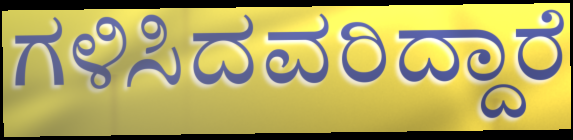
ಗಳಿಸಿದವರಿದ್ದಾರೆ